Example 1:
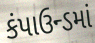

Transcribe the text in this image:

કંપાઉન્ડમાં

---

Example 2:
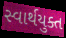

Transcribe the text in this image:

સ્વાર્થયુક્ત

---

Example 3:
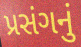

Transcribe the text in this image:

પ્રસંગનું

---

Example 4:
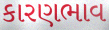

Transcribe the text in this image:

કારણભાવ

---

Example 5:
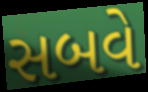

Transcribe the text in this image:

સબવે